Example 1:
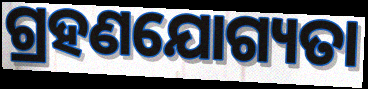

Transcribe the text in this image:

ଗ୍ରହଣଯୋଗ୍ୟତା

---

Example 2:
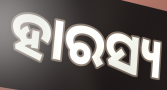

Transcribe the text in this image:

ହାରସ୍ୟ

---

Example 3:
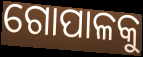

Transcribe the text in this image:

ଗୋପାଳକୁ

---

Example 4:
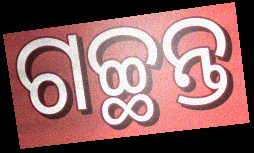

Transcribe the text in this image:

ଗଚ୍ଛନ୍ତ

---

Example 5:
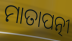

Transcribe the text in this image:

ମାତାପତ୍ନୀ